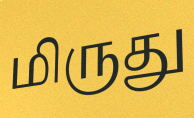
மிருது